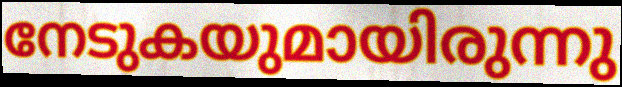
നേടുകയുമായിരുന്നു